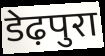
डेढ़पुरा